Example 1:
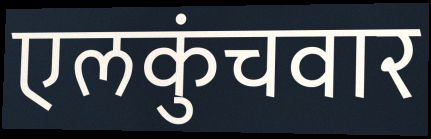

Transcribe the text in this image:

एलकुंचवार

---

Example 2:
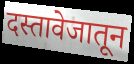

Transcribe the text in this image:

दस्तावेजातून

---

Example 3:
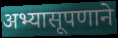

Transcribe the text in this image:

अभ्यासूपणाने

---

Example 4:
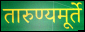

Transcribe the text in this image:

तारुण्यमूर्ते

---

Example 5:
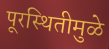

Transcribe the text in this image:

पूरस्थितीमुळे